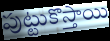
పుట్టుకొస్తాయి